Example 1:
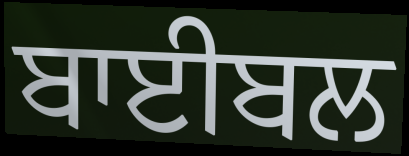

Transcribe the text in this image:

ਬਾਈਬਲ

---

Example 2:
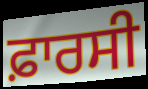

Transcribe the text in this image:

ਫ਼ਾਰਸੀ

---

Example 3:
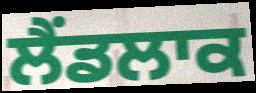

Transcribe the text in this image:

ਲੈਂਡਲਾਕ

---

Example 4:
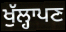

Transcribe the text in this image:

ਖੁੱਲ੍ਹਾਪਣ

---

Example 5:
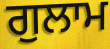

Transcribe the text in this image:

ਗੁਲਾਮ